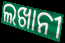
ଲଖାନୀ